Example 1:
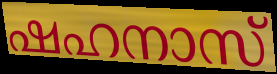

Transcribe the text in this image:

ഷഹനാസ്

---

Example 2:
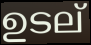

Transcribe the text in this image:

ഉടല്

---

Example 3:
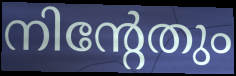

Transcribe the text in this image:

നിന്റേതും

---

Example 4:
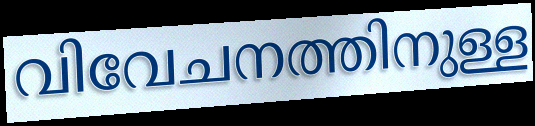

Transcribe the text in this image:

വിവേചനത്തിനുള്ള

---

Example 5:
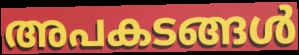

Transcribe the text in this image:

അപകടങ്ങൾ